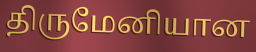
திருமேனியான